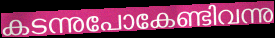
കടന്നുപോകേണ്ടിവന്നു